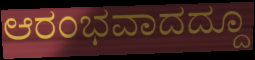
ಆರಂಭವಾದದ್ದೂ